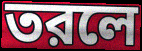
তরলে